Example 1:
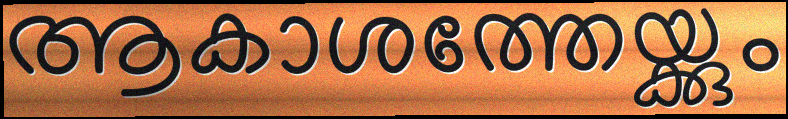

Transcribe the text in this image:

ആകാശത്തേയ്ക്കും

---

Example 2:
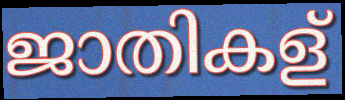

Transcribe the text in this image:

ജാതികള്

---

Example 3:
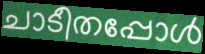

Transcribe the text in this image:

ചാടീതപ്പോൾ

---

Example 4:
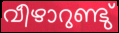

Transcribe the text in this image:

വീഴാറുണ്ടു്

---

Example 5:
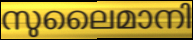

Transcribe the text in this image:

സുലൈമാനി